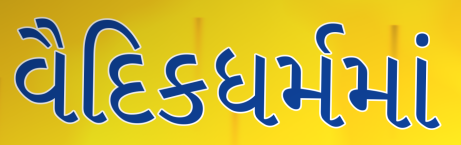
વૈદિકધર્મમાં